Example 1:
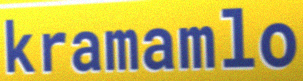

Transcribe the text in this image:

kramamlo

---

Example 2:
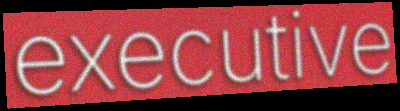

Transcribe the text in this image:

executive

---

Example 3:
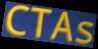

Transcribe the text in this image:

CTAs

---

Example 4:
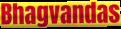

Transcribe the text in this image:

Bhagvandas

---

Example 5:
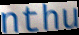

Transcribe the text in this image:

nthu